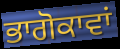
ਭਾਗੋਕਾਵਾਂ